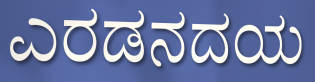
ಎರಡನದಯ